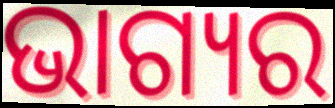
ଭାଗ୍ୟର